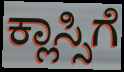
ಕ್ಲಾಸ್ಸಿಗೆ